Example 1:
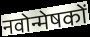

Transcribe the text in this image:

नवोन्‍मेषकों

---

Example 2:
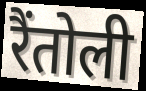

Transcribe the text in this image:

रैंतोली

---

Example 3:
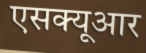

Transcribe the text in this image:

एसक्यूआर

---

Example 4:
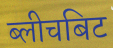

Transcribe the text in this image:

ब्लीचबिट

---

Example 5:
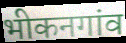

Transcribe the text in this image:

भीकनगांव